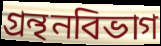
গ্রন্থনবিভাগ